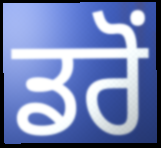
ਡਰੋਂ